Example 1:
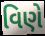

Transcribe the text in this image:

વિણે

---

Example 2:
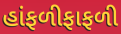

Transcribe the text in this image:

હાંફળીફાફળી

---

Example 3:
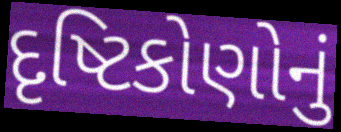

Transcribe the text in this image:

દૃષ્ટિકોણોનું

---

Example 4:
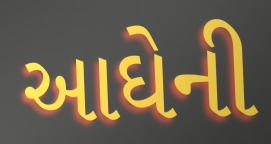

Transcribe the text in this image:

આઘેની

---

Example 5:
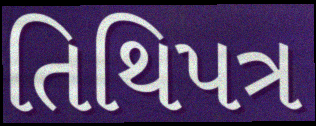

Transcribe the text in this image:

તિથિપત્ર